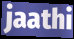
jaathi